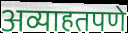
अव्याहतपणे